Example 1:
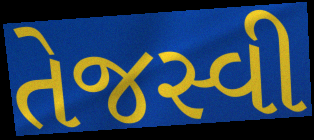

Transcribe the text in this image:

તેજસ્વી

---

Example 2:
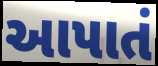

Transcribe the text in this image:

આપાતં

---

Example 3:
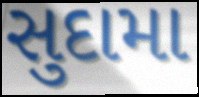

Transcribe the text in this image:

સુદામા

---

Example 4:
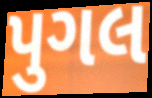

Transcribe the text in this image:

પુગલ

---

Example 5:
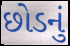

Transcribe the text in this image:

છોડનું